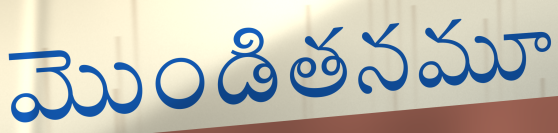
మొండితనమూ